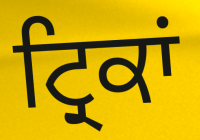
ਟ੍ਰਿਕਾਂ